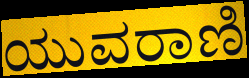
ಯುವರಾಣಿ